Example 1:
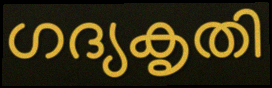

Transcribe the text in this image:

ഗദ്യകൃതി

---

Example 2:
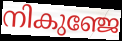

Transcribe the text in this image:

നികുഞ്ജേ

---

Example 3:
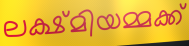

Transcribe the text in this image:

ലക്ഷ്മിയമ്മക്ക്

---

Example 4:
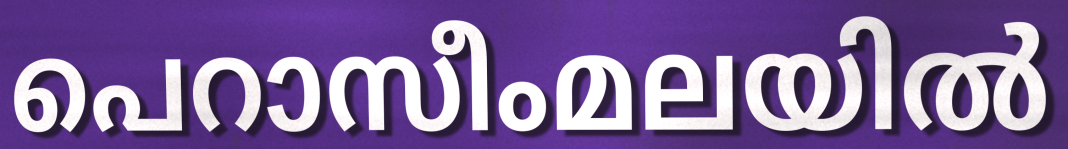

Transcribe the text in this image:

പെറാസീംമലയിൽ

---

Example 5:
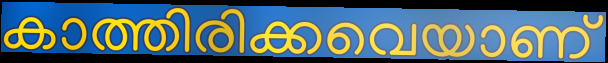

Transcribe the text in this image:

കാത്തിരിക്കവെയാണ്